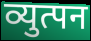
व्युत्पन